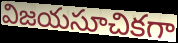
విజయసూచికగా